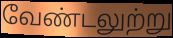
வேண்டலுற்று